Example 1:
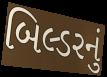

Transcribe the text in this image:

બિલ્ડરનું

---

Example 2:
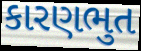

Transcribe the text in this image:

કારણભુત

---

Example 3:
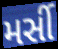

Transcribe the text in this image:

મર્સી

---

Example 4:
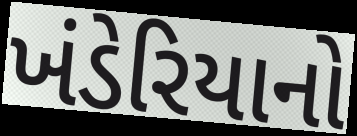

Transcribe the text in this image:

ખંડેરિયાનો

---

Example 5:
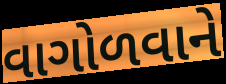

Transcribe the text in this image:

વાગોળવાને